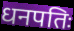
धनपतिः